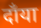
दाँया